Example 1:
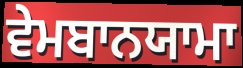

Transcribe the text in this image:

ਵੇਮਬਾਨਯਾਮਾ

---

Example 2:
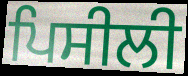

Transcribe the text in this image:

ਪਿਸੀਲੀ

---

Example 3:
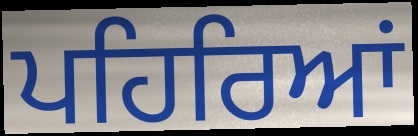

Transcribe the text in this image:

ਪਹਿਰਿਆਂ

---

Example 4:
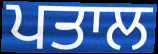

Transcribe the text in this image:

ਪਤਾਲ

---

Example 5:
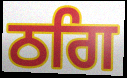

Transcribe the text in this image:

ਠਗਿ